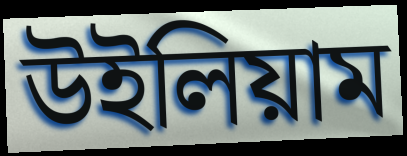
উইলিয়াম